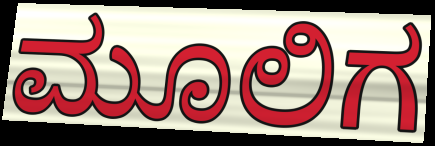
ಮೂಲಿಗ